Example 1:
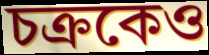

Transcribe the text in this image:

চক্রকেও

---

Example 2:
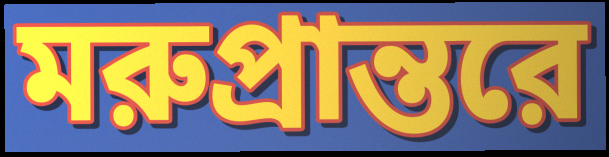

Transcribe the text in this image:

মরুপ্রান্তরে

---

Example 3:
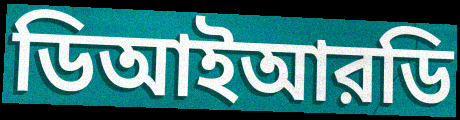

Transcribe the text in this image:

ডিআইআরডি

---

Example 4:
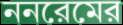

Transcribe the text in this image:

ননরেমের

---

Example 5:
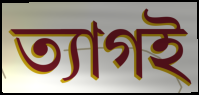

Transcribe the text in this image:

ত্যাগই